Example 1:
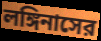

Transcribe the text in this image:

লঙ্গিনাসের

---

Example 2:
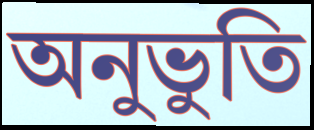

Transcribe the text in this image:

অনুভুতি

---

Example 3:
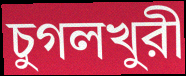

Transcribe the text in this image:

চুগলখুরী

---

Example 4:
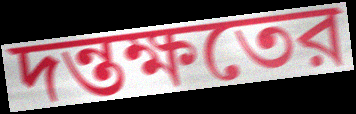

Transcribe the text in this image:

দন্তক্ষতের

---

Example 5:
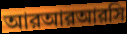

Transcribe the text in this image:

আরআরআরসি